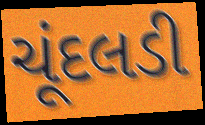
ચૂંદલડી